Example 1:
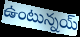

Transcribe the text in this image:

ఉంటున్నయ్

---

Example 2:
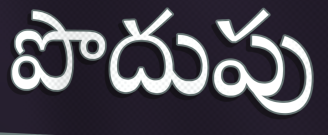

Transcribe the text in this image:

పొదుపు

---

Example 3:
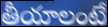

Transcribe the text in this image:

తీయాలంటే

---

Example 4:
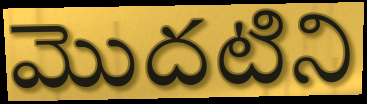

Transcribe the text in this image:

మొదటిని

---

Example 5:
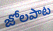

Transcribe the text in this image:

జోలపాట